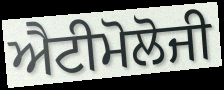
ਐਟੀਮੋਲੋਜੀ